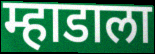
म्हाडाला